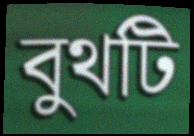
বুথটি